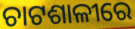
ଚାଟଶାଳୀରେ